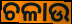
ଚଳାଉ